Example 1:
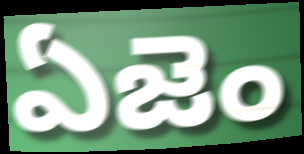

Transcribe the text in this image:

ఏజెం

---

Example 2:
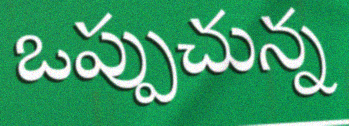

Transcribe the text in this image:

ఒప్పుచున్న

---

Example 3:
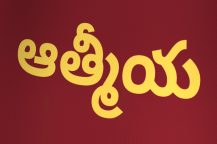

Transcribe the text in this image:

ఆత్మీయ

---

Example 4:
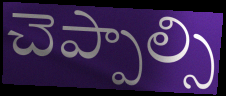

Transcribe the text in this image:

చెప్పాల్సి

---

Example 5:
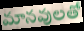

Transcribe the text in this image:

మానవులతో